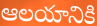
ఆలయానికి